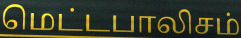
மெட்டபாலிசம்